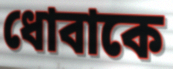
ধোবাকে